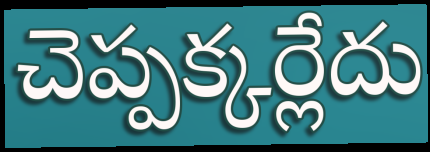
చెప్పక్కర్లేదు